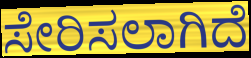
ಸೇರಿಸಲಾಗಿದೆ